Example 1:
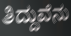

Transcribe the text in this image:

ತಿದ್ದುವೆನು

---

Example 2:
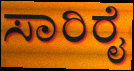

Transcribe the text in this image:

ಸಾರಿರೈ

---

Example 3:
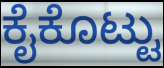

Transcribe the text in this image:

ಕೈಕೊಟ್ಟು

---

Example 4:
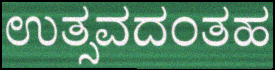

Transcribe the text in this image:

ಉತ್ಸವದಂತಹ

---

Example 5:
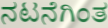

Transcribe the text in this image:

ನಟನೆಗಿಂತ